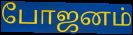
போஜனம்